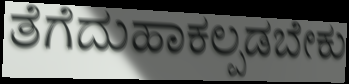
ತೆಗೆದುಹಾಕಲ್ಪಡಬೇಕು